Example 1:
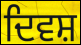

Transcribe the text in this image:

ਦਿਵਸ਼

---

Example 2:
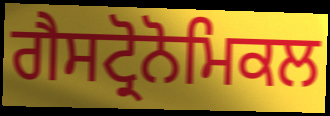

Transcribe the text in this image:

ਗੈਸਟ੍ਰੋਨੋਮਿਕਲ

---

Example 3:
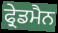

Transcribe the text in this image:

ਫ੍ਰੇਡਮੈਨ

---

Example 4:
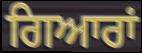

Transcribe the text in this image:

ਗਿਆਰਾਂ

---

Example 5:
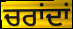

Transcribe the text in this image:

ਚਰਾਂਦਾਂ